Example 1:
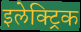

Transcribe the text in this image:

इलेक्ट्रिक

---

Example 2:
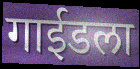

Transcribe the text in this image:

गाईडला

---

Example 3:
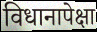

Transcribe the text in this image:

विधानापेक्षा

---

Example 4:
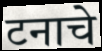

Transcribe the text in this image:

टनाचे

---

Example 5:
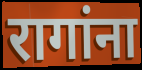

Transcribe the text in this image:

रागांना